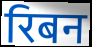
रिबन